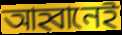
আহ্বানেই